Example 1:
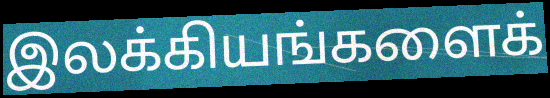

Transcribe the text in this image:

இலக்கியங்களைக்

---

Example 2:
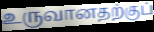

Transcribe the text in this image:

உருவானதற்குப்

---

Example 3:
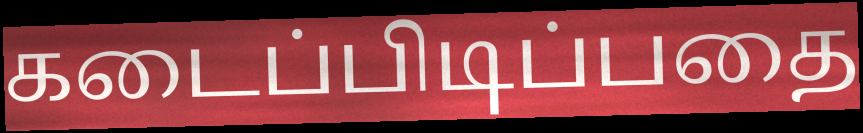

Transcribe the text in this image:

கடைப்பிடிப்பதை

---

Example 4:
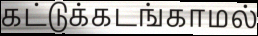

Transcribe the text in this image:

கட்டுக்கடங்காமல்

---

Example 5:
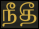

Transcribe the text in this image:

நீதீ